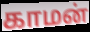
காமன்